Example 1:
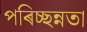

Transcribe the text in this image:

পৰিচ্ছন্নতা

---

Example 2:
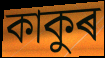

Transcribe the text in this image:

কাকুৰ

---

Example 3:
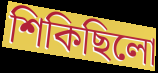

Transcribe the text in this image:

শিকিছিলো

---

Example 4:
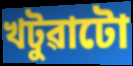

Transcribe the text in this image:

খটুৱাটো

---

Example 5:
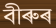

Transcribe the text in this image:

বীৰুৰ